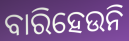
ବାରିହେଉନି